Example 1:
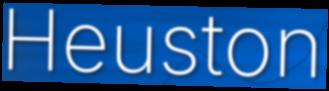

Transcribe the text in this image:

Heuston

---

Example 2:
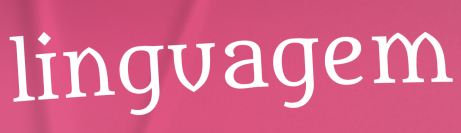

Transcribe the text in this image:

linguagem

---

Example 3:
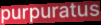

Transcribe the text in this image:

purpuratus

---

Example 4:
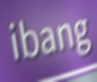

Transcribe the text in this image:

ibang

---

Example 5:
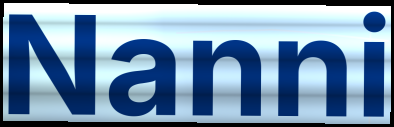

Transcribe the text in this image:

Nanni